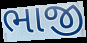
ભાજી